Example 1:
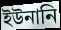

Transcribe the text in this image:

ইউনানি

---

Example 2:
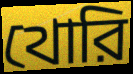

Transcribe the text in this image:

থোরি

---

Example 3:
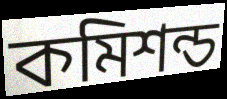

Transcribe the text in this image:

কমিশন্ড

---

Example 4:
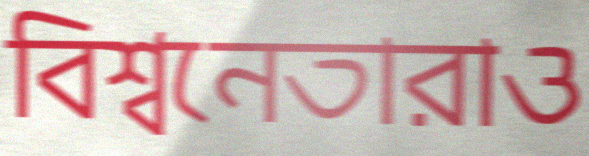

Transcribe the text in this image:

বিশ্বনেতারাও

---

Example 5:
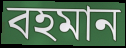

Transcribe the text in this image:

বহমান